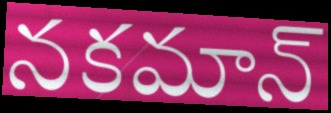
నకమాన్